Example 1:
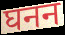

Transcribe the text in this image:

घनन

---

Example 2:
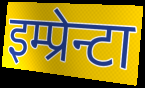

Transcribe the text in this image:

इम्प्रेन्टा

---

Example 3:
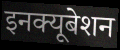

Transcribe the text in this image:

इनक्यूबेशन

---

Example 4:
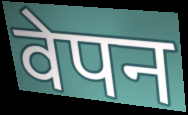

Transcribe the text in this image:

वेपन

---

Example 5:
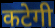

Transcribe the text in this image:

कटेगी